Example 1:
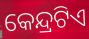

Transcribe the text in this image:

କେନ୍ଦ୍ରଟିଏ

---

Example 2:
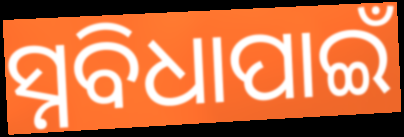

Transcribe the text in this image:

ସ୍ନବିଧାପାଇଁ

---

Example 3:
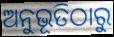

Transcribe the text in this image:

ଅନୁଭୂତିଠାରୁ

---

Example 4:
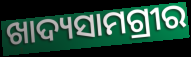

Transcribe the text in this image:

ଖାଦ୍ୟସାମଗ୍ରୀର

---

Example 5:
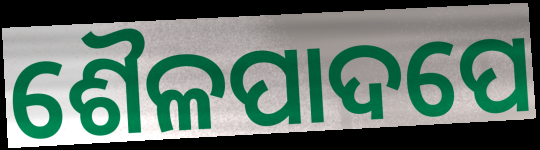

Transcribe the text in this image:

ଶୈଳପାଦପେ